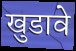
खुडावे